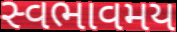
સ્વભાવમય